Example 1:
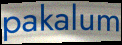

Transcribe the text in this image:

pakalum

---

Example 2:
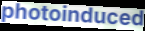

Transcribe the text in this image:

photoinduced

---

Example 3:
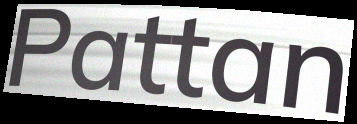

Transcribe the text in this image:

Pattan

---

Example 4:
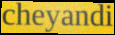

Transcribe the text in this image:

cheyandi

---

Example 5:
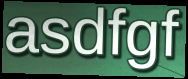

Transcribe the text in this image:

asdfgf